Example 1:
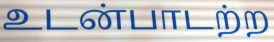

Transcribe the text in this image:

உடன்பாடற்ற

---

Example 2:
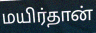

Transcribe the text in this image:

மயிர்தான்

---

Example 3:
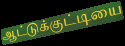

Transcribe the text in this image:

ஆட்டுக்குட்டியை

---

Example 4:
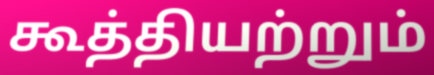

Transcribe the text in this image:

கூத்தியற்றும்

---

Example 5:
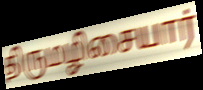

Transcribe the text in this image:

திருமழிசையார்